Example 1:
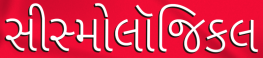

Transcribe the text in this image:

સીસ્મોલૉજિકલ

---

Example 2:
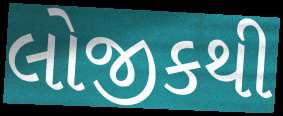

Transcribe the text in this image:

લોજીકથી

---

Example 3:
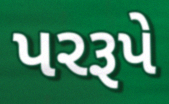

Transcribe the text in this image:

પરરૂપે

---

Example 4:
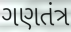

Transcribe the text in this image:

ગણતંત્ર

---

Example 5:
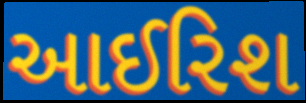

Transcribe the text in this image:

આઈરિશ